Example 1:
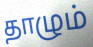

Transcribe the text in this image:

தாழும்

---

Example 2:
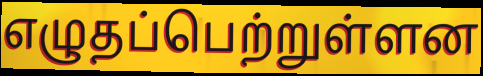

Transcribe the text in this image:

எழுதப்பெற்றுள்ளன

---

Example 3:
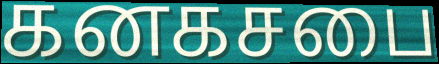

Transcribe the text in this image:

கனகசபை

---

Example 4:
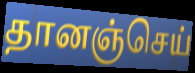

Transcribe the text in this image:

தானஞ்செய்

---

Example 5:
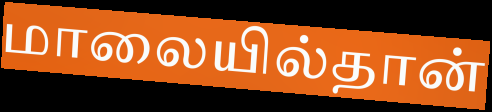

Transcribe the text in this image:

மாலையில்தான்